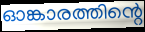
ഓങ്കാരത്തിന്റെ